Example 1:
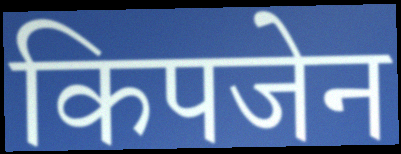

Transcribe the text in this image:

किपजेन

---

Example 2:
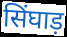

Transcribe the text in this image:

सिंघाड़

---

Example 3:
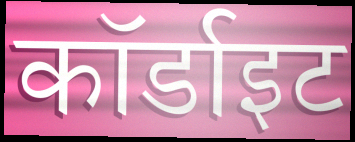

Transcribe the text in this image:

कॉर्डाइट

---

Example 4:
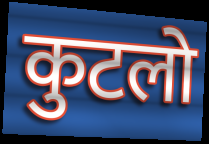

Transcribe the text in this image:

कुटलो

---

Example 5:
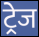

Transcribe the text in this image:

ट्रेज